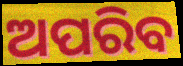
ଅପରିବ